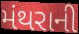
મંથરાની